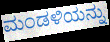
ಮಂಡಳಿಯನ್ನು